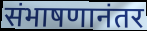
संभाषणानंतर